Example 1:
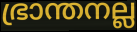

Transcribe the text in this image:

ഭ്രാന്തനല്ല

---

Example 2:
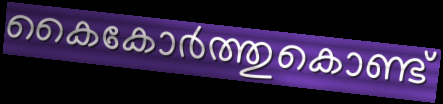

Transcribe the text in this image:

കൈകോർത്തുകൊണ്ട്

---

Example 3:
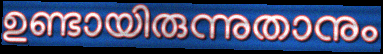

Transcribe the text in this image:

ഉണ്ടായിരുന്നുതാനും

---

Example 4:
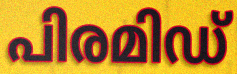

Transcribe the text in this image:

പിരമിഡ്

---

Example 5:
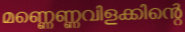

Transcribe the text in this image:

മണ്ണെണ്ണവിളക്കിന്റെ